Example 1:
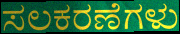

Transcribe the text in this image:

ಸಲಕರಣೆಗಳು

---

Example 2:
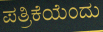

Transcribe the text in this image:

ಪತ್ರಿಕೆಯೆಂದು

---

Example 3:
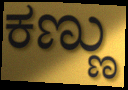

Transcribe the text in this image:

ಕಣ್ಣು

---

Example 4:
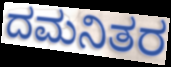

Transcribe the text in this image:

ದಮನಿತರ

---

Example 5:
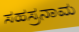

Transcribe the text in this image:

ಸಹಸ್ರನಾಮ